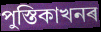
পুস্তিকাখনৰ